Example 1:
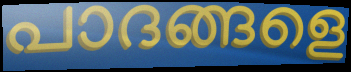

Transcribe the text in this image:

പാദങ്ങളെ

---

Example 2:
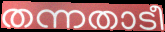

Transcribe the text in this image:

തന്നതാടീ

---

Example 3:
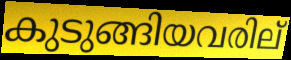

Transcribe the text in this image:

കുടുങ്ങിയവരില്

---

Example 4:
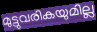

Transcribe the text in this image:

മുട്ടുവരികയുമില്ല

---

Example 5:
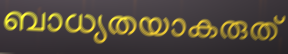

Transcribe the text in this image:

ബാധ്യതയാകരുത്